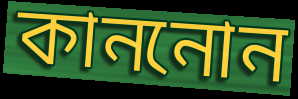
কাননোন